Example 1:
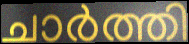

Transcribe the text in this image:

ചാർത്തി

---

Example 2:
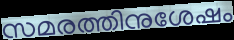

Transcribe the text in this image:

സമരത്തിനുശേഷം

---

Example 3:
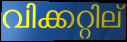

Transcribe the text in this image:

വിക്കറ്റില്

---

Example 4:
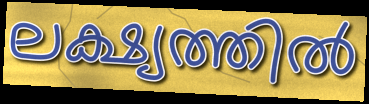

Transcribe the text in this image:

ലക്ഷ്യത്തിൽ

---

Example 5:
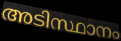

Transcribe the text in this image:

അടിസ്ഥാനം